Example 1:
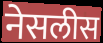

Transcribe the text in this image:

नेसलीस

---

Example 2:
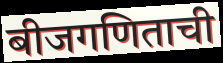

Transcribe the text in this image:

बीजगणिताची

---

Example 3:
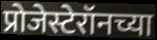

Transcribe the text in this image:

प्रोजेस्टेरॉनच्या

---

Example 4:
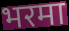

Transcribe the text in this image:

भरमा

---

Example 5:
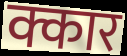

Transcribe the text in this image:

क्कार